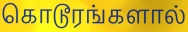
கொடூரங்களால்